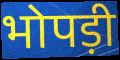
भोपड़ी